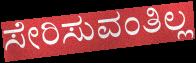
ಸೇರಿಸುವಂತಿಲ್ಲ